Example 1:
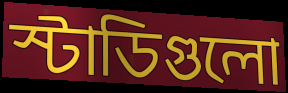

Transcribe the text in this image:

স্টাডিগুলো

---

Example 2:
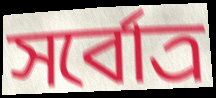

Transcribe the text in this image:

সর্বোত্র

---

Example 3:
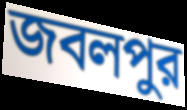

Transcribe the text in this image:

জবলপুর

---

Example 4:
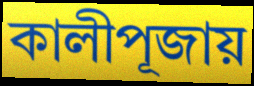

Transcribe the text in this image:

কালীপূজায়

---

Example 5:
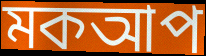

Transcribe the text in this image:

মকআপ